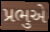
પ્રભુએ